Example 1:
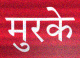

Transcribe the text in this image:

मुरके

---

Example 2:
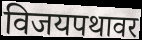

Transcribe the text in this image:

विजयपथावर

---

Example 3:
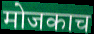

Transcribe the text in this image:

मोजकाच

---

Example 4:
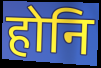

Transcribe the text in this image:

होनि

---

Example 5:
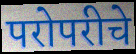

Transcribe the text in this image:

परोपरीचे